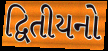
દ્વિતીયનો